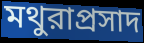
মথুরাপ্রসাদ